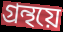
গ্ৰন্থয়ে